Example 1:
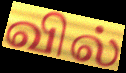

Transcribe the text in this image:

வில்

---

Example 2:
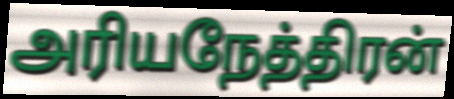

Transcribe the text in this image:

அரியநேத்திரன்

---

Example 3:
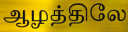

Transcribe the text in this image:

ஆழத்திலே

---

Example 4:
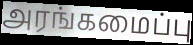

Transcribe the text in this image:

அரங்கமைப்பு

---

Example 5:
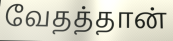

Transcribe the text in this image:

வேதத்தான்